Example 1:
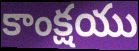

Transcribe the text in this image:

కాంక్షయు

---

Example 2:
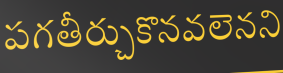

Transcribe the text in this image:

పగతీర్చుకొనవలెనని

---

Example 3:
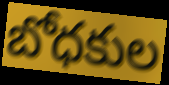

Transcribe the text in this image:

బోధకుల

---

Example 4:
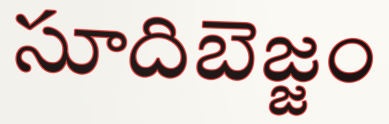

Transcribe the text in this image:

సూదిబెజ్జం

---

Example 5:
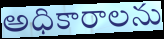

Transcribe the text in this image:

అధికారాలను